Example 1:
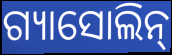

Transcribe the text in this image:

ଗ୍ୟାସୋଲିନ୍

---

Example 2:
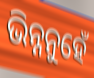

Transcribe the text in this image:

ଭିନ୍ନନୁହେଁ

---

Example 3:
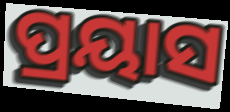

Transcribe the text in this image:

ପ୍ରୟାସ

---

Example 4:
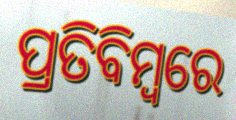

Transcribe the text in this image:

ପ୍ରତିବିମ୍ବରେ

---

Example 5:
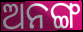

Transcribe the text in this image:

ଅନଙ୍ଗ